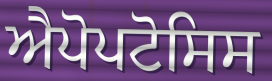
ਐਪੋਪਟੋਸਿਸ